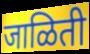
जाळिती